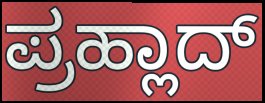
ಪ್ರಹ್ಲಾದ್